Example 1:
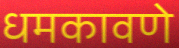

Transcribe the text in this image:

धमकावणे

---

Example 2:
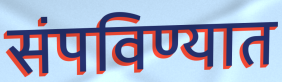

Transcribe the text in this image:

संपविण्यात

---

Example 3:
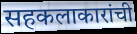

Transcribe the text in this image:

सहकलाकारांची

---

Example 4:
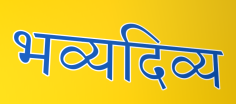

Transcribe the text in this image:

भव्यदिव्य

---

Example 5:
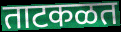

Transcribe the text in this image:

ताटकळत